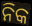
ନିକ